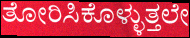
ತೋರಿಸಿಕೊಳ್ಳುತ್ತಲೇ